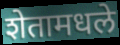
शेतामधले